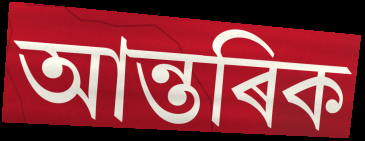
আন্তৰিক